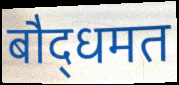
बौद्धमत